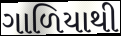
ગાળિયાથી